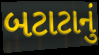
બટાટાનું